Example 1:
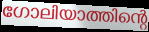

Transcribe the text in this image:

ഗോലിയാത്തിന്റെ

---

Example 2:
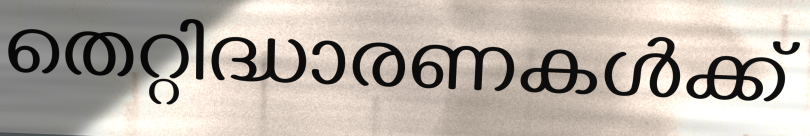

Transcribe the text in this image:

തെറ്റിദ്ധാരണകൾക്ക്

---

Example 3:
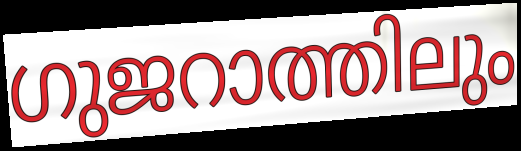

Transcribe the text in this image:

ഗുജറാത്തിലും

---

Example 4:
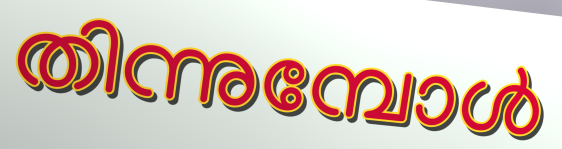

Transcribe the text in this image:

തിന്നുമ്പോൾ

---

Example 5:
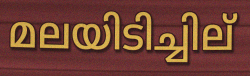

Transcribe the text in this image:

മലയിടിച്ചില്